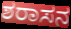
ಶರಾಸನ